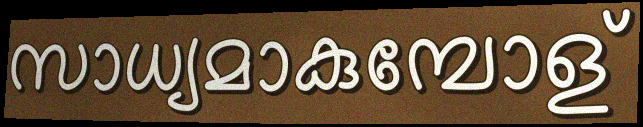
സാധ്യമാകുമ്പോള്